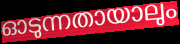
ഓടുന്നതായാലും